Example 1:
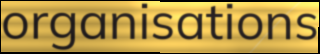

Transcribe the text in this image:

organisations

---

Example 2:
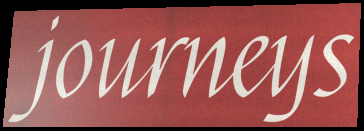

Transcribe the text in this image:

journeys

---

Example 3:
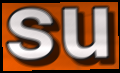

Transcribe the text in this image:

su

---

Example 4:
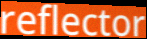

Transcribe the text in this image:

reflector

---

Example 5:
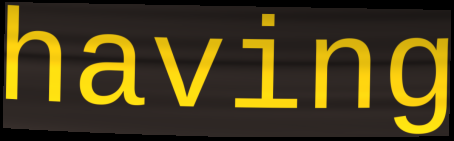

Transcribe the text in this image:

having